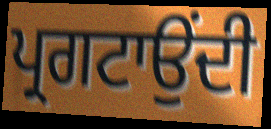
ਪ੍ਰਗਟਾਉਂਦੀ